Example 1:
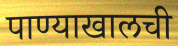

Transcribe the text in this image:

पाण्याखालची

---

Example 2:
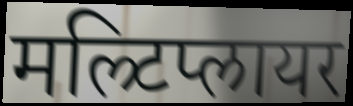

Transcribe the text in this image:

मल्टिप्लायर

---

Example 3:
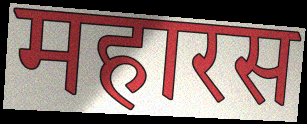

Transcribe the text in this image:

महारस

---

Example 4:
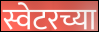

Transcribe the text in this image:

स्वेटरच्या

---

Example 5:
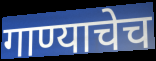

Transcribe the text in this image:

गाण्याचेच